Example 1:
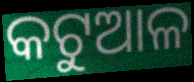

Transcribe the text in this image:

କଟୁଆଳ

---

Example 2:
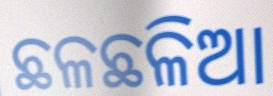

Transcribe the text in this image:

ଛଳଛଳିଆ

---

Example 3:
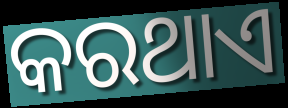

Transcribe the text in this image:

କରଥାଏ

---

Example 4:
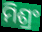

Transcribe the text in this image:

ମିଶ୍ରଂ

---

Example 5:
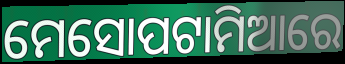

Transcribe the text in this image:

ମେସୋପଟାମିଆରେ